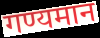
गण्यमान